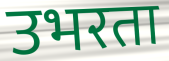
उभरता